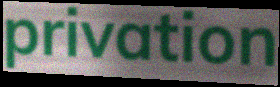
privation